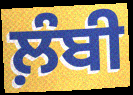
ਲ਼ੰਬੀ